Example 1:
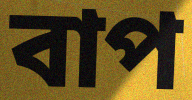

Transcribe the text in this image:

বাপ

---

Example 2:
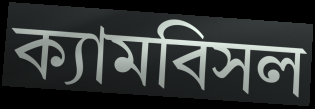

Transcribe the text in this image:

ক্যামবিসল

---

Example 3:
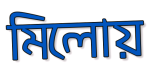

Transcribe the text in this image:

মিলোয়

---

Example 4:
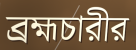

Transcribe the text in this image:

ব্রহ্মচারীর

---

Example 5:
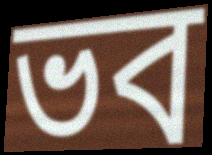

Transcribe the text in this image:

ভব